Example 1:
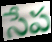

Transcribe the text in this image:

సేప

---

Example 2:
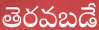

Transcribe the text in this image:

తెరవబడే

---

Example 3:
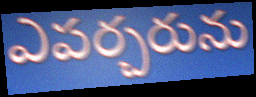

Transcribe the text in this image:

ఎపర్చరును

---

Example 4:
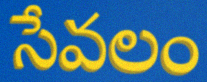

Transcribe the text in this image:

సేవలం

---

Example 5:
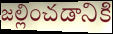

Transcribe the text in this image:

జల్లించడానికి